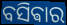
ବସିଵାର